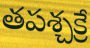
తపశ్చక్రే